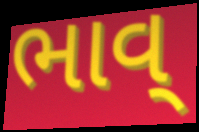
ભાવ્